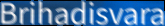
Brihadisvara